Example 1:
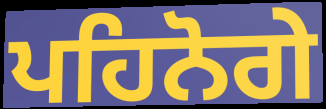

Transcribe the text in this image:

ਪਹਿਨੋਗੇ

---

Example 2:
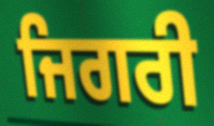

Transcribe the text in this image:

ਜਿਗਰੀ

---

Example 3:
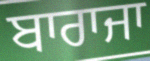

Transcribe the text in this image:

ਬਾਰਾਜਾ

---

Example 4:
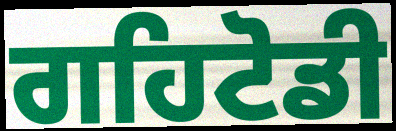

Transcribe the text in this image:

ਗਹਿਟੋਡੀ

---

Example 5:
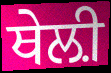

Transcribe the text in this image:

ਥੇਲ਼ੀ